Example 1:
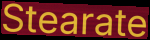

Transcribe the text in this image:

Stearate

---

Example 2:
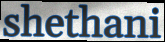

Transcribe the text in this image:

shethani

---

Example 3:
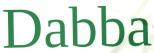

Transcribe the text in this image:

Dabba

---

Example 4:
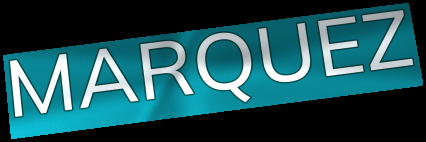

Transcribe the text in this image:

MARQUEZ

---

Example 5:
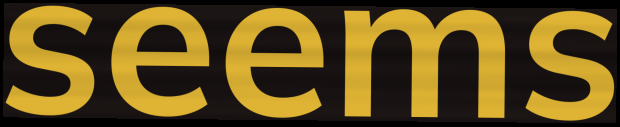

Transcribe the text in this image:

seems